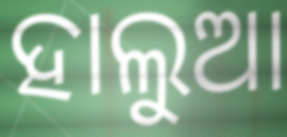
ହାଲୁଆ